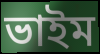
ভাইম